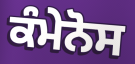
ਕੰਮੇਨੋਸ